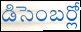
డిసెంబర్లో